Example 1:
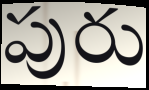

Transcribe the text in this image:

పురు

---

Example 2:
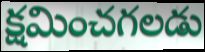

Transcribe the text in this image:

క్షమించగలడు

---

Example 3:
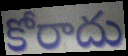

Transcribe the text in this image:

కోరాదు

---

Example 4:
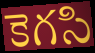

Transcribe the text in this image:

కెగసి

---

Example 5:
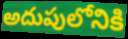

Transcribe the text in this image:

అదుపులోనికి